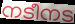
നടീനട